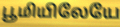
பூமியிலேயே